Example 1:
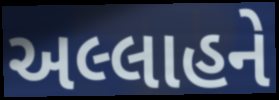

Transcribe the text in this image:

અલ્લાહને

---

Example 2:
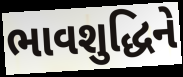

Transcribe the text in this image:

ભાવશુદ્ધિને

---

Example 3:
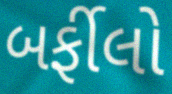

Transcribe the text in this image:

બર્ફીલો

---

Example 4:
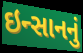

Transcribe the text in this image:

ઇન્સાનનું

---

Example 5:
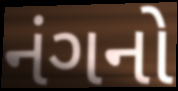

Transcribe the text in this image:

નંગનો